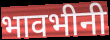
भावभीनी